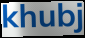
khubj